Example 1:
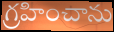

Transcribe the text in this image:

గ్రహించాను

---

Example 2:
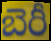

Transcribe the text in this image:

బెరీ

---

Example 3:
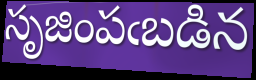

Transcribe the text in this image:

సృజింపఁబడిన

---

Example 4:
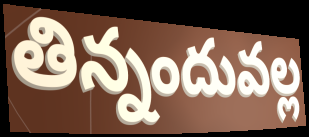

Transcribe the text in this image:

తిన్నందువల్ల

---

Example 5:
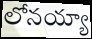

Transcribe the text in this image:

లోనయ్యా